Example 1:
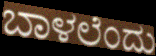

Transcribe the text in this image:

ಬಾಳಲೆಂದು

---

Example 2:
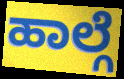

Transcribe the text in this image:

ಹಾಲ್ಗೆ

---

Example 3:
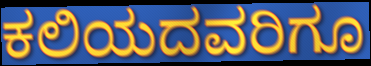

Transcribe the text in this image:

ಕಲಿಯದವರಿಗೂ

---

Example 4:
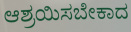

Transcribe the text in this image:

ಆಶ್ರಯಿಸಬೇಕಾದ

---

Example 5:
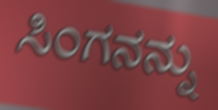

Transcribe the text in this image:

ಸಿಂಗನನ್ನು